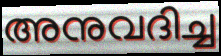
അനുവദിച്ച